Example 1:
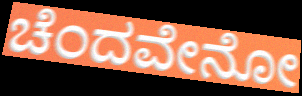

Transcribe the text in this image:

ಚೆಂದವೇನೋ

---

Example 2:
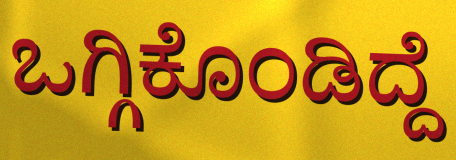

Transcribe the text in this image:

ಒಗ್ಗಿಕೊಂಡಿದ್ದೆ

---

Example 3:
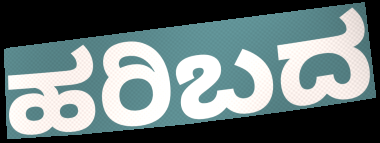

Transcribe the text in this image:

ಹರಿಬದ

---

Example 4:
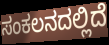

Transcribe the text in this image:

ಸಂಕಲನದಲ್ಲಿದೆ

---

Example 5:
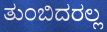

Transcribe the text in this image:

ತುಂಬಿದರಲ್ಲ